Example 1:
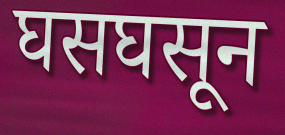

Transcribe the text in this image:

घसघसून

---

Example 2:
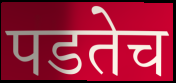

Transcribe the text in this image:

पडतेच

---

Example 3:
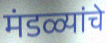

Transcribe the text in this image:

मंडळ्यांचे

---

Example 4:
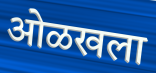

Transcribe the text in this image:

ओळखला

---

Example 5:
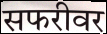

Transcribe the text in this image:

सफरीवर